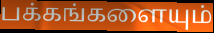
பக்கங்களையும்